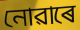
নোৱাৰে